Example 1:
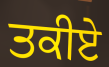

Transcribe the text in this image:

ਤਕੀਏ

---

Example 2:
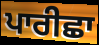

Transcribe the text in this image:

ਪਾਰੀਛਾ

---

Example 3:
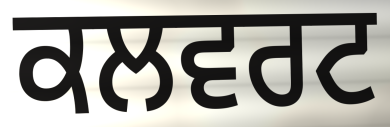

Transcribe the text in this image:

ਕਲਵਰਟ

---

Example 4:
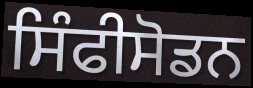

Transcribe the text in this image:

ਸਿੰਫੀਸੋਡਨ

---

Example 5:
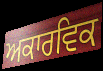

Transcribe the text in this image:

ਅਕਾਰਵਿਕ